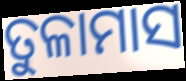
ତୁଳାମାସ